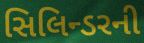
સિલિન્ડરની